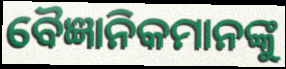
ବୈଜ୍ଞାନିକମାନଙ୍କୁ